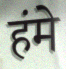
हंमे